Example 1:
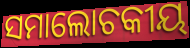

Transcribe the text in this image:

ସମାଲୋଚକୀୟ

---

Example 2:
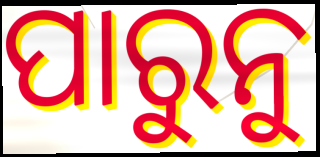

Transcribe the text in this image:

ପାରୁନୁ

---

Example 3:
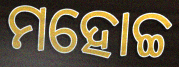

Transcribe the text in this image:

ମହୋଚ୍ଚ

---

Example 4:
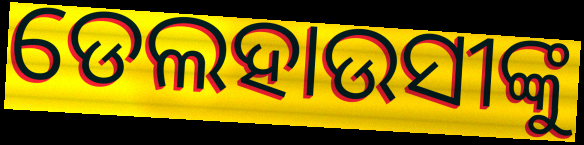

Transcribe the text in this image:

ଡେଲହାଉସୀଙ୍କୁ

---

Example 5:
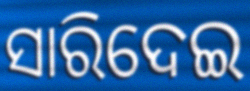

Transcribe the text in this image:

ସାରିଦେଇ